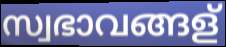
സ്വഭാവങ്ങള്